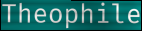
Theophile